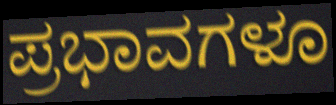
ಪ್ರಭಾವಗಳೂ